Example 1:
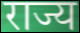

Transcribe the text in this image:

राज्य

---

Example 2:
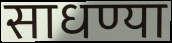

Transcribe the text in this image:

साधण्या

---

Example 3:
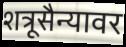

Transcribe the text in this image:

शत्रूसैन्यावर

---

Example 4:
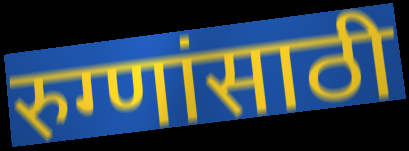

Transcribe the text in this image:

रुग्णांसाठी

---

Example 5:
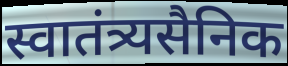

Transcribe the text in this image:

स्वातंत्र्यसैनिक